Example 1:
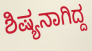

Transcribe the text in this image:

ಶಿಷ್ಯನಾಗಿದ್ದ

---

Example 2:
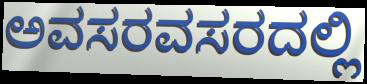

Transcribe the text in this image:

ಅವಸರವಸರದಲ್ಲಿ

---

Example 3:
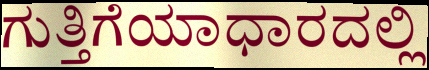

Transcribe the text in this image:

ಗುತ್ತಿಗೆಯಾಧಾರದಲ್ಲಿ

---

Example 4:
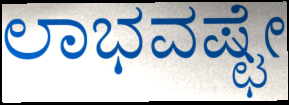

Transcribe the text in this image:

ಲಾಭವಷ್ಟೇ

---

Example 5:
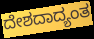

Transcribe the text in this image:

ದೇಶದಾದ್ಯಂತ